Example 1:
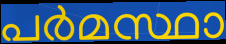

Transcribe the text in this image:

പർമസ്ഥാ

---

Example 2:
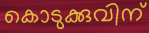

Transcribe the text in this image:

കൊടുക്കുവിന്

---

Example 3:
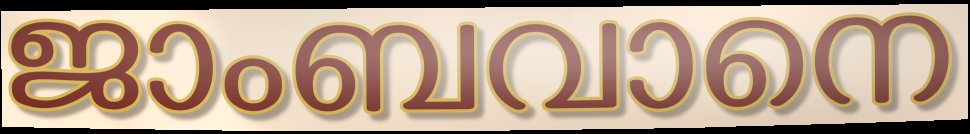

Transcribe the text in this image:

ജാംബവാനെ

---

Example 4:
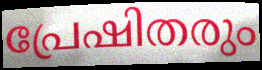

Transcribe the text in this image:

പ്രേഷിതരും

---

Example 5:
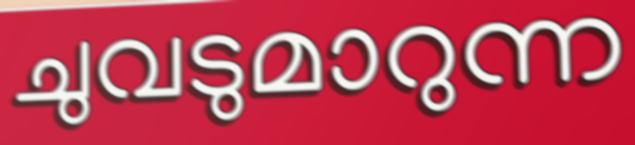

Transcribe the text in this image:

ചുവടുമാറുന്ന